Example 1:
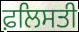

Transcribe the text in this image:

ਫ਼ਲਿਸਤੀ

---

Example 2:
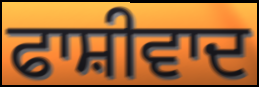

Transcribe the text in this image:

ਫਾਸ਼ੀਵਾਦ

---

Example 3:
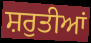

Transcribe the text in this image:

ਸ਼ਰੁਤੀਆਂ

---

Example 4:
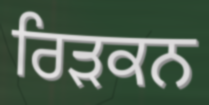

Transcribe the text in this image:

ਰਿੜਕਨ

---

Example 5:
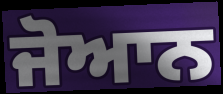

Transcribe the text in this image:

ਜੋਆਨ